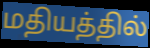
மதியத்தில்